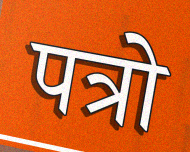
पत्रो